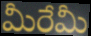
మీరేమీ